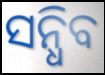
ସନ୍ଧିବ